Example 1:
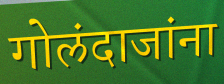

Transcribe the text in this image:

गोलंदाजांना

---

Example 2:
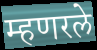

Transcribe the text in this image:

म्हणरले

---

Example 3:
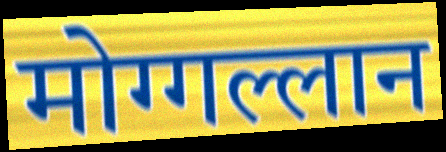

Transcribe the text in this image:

मोग्गल्लान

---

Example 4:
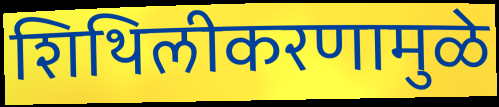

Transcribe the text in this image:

शिथिलीकरणामुळे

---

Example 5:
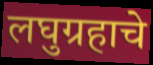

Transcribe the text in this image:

लघुग्रहाचे